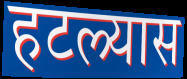
हटल्यास